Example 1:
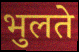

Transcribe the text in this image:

भुलते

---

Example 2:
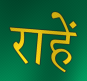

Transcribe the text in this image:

राहें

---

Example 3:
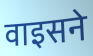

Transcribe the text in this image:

वाइसने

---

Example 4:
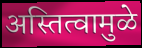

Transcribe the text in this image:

अस्तित्वामुळे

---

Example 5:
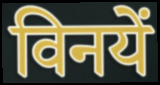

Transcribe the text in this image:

विनयें